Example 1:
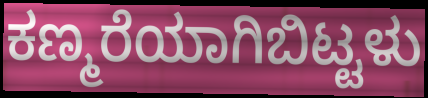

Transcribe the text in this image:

ಕಣ್ಮರೆಯಾಗಿಬಿಟ್ಟಳು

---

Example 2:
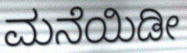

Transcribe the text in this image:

ಮನೆಯಿಡೀ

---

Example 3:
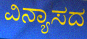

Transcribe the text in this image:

ವಿನ್ಯಾಸದ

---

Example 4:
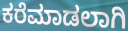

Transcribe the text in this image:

ಕರೆಮಾಡಲಾಗಿ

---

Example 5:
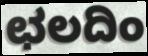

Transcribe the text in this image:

ಛಲದಿಂ